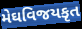
મેઘવિજયકૃત